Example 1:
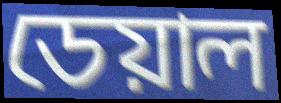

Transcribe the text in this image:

ডেয়াল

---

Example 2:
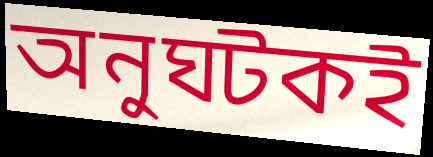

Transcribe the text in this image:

অনুঘটকই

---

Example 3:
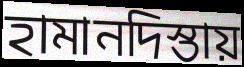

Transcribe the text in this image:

হামানদিস্তায়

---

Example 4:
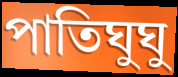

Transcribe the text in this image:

পাতিঘুঘু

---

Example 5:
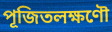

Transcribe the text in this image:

পূজিতলক্ষণৌ